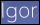
Igor